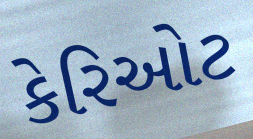
કેરિઓટ